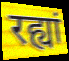
रह्यां